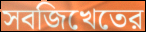
সবজিখেতের